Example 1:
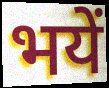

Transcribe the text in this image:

भयें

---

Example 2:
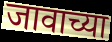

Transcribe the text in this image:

जावाच्या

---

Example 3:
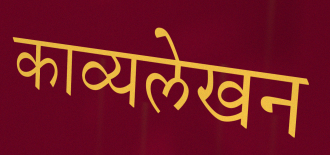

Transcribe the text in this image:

काव्यलेखन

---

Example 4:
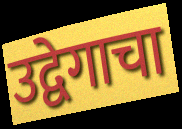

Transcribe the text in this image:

उद्वेगाचा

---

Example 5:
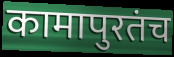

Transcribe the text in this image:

कामापुरतंच